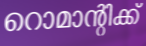
റൊമാന്റിക്ക്